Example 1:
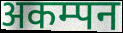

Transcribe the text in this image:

अकम्पन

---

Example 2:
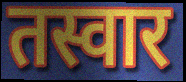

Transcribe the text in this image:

तस्वार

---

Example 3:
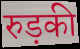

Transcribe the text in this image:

रुड़की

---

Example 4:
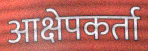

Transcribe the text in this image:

आक्षेपकर्ता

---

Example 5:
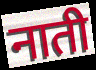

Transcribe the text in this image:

नाती